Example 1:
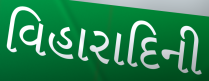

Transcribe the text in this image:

વિહારાદિની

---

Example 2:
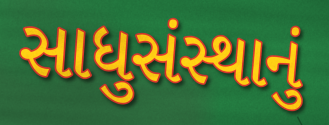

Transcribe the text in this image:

સાધુસંસ્થાનું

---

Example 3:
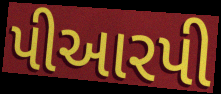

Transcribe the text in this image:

પીઆરપી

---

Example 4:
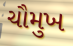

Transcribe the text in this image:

ચૌમુખ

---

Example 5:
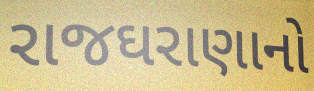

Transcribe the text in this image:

રાજઘરાણાનો